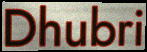
Dhubri